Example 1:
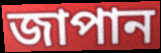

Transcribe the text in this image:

জাপান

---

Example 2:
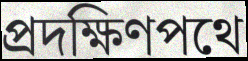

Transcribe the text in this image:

প্রদক্ষিণপথে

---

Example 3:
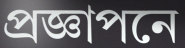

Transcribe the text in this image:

প্রজ্ঞাপনে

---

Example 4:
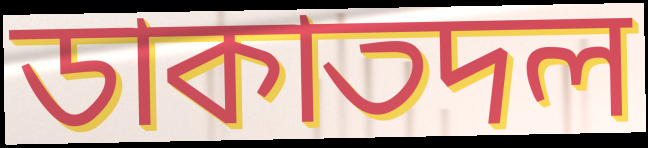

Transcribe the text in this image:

ডাকাতদল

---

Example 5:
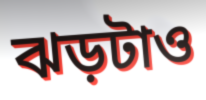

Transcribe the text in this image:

ঝড়টাও